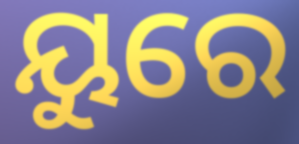
ୟୁରେ